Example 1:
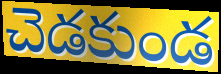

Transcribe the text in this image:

చెడకుండ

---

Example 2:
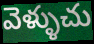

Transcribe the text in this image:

వెళ్ళుచు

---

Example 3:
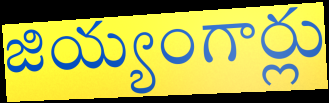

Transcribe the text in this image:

జియ్యంగార్లు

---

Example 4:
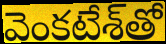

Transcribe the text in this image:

వెంకటేశ్‌తో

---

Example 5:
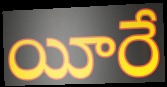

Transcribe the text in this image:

యీరే